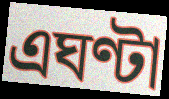
এঘণ্টা